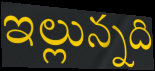
ఇల్లున్నది